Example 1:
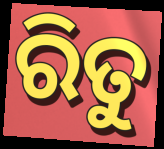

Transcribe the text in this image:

ରିତୁ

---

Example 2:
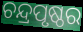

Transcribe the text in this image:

ଚନ୍ଦ୍ରପୃଷ୍ଠର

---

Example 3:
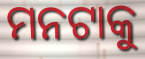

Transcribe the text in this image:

ମନଟାକୁ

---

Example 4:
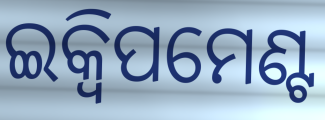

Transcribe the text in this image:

ଇକ୍ୱିପମେଣ୍ଟ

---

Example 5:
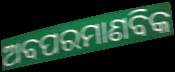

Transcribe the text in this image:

ଅବପରମାଣବିକ